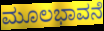
ಮೂಲಭಾವನೆ